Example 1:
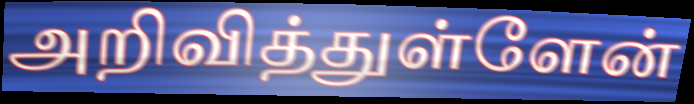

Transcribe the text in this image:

அறிவித்துள்ளேன்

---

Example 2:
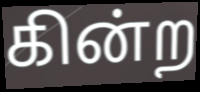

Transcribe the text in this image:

கின்ற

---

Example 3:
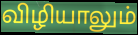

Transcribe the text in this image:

விழியாலும்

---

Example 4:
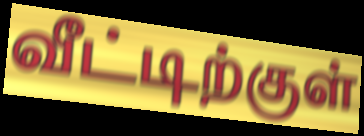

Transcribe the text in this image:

வீட்டிற்குள்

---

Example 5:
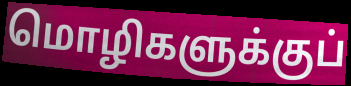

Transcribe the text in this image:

மொழிகளுக்குப்